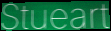
Stueart